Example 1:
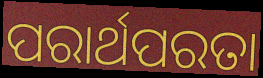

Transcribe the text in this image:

ପରାର୍ଥପରତା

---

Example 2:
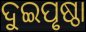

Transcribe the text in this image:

ଦୁଇପୃଷ୍ଠା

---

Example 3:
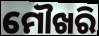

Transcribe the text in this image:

ମୌଖରି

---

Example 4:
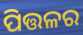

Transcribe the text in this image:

ପିତ୍ତଳର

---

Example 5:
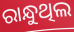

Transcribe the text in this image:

ରାନ୍ଧୁଥିଲ